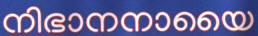
നിഭാനനായൈ